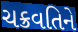
ચક્રવતિને